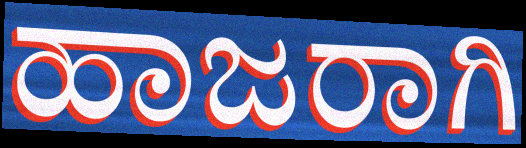
ಹಾಜರಾಗಿ